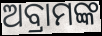
ଅବ୍ରାମଙ୍କ